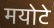
मयोटे